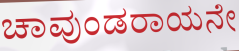
ಚಾವುಂಡರಾಯನೇ